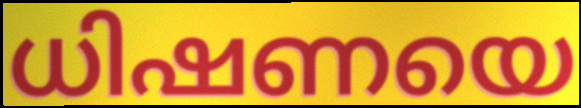
ധിഷണയെ